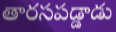
తారసపడ్డాడు